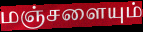
மஞ்சளையும்